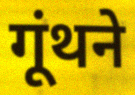
गूंथने